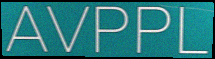
AVPPL